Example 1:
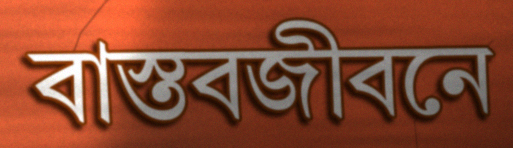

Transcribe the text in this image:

বাস্তবজীবনে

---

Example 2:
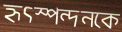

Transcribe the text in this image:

হৃৎস্পন্দনকে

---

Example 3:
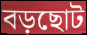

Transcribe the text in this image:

বড়ছোট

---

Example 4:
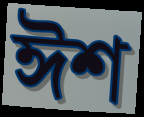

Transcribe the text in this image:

ঈশ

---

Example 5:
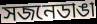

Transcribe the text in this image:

সজনেডাঙা